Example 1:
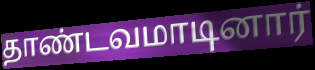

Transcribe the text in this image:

தாண்டவமாடினார்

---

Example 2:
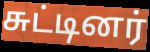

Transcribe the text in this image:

சுட்டினர்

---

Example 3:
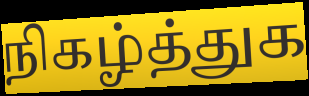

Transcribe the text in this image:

நிகழ்த்துக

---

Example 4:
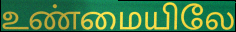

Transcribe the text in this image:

உண்மையிலே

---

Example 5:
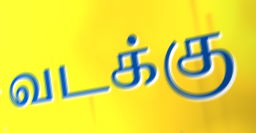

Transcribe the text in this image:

வடக்கு